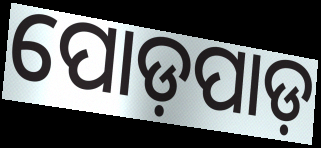
ପୋଡ଼ପାଡ଼